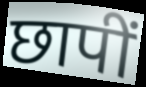
छापीं